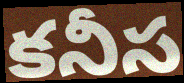
కనీస